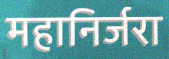
महानिर्जरा